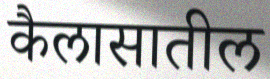
कैलासातील